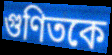
গুণিতকে